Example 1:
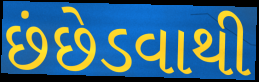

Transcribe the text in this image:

છંછેડવાથી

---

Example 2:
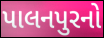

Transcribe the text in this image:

પાલનપુરનો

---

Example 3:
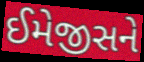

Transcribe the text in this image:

ઈમેજીસને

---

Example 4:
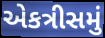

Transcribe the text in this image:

એકત્રીસમું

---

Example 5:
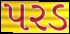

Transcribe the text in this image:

પરડ